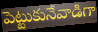
పెట్టుకునేవాడిగా